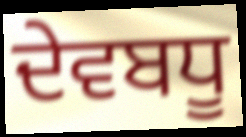
ਦੇਵਬਧੂ